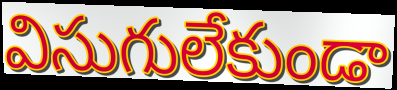
విసుగులేకుండా